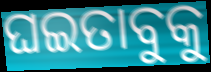
ଘଇତାବୁକୁ